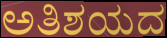
ಅತಿಶಯದ